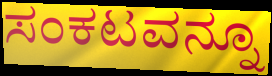
ಸಂಕಟವನ್ನೂ